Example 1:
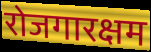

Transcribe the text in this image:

रोजगारक्षम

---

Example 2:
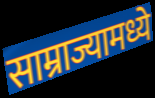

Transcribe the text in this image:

साम्राज्यामध्ये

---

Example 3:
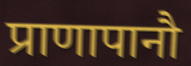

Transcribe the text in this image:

प्राणापानौ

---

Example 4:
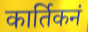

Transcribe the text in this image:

कार्तिकनं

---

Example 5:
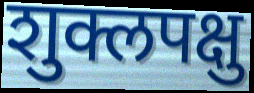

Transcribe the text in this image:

शुक्लपक्षु